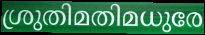
ശ്രുതിമതിമധുരേ